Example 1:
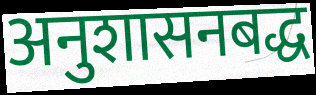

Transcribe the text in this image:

अनुशासनबद्ध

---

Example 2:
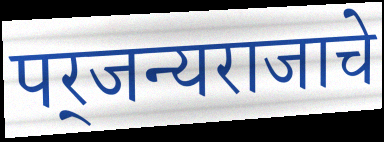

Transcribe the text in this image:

पर्जन्यराजाचे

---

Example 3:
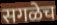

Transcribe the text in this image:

सगळेच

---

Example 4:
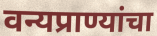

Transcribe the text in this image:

वन्यप्राण्यांचा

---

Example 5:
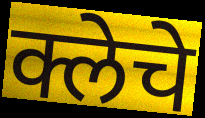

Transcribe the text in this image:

क्लेचे